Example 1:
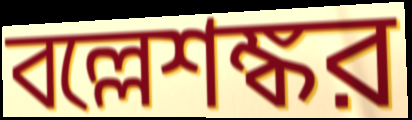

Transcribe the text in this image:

বল্লেশঙ্কর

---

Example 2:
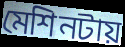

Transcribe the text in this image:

মেশিনটায়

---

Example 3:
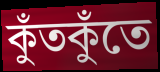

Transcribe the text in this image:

কুঁতকুঁতে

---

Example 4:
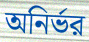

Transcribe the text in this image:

অনির্ভর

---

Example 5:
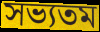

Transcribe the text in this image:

সভ্যতম